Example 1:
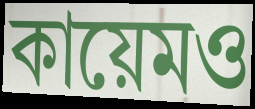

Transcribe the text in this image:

কায়েমও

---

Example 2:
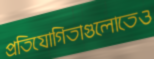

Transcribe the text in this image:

প্রতিযোগিতাগুলোতেও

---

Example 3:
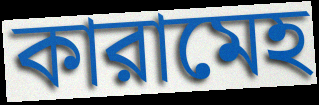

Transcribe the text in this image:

কারামেহ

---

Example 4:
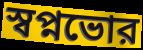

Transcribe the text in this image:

স্বপ্নভোর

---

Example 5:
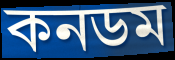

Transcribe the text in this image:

কনডম